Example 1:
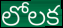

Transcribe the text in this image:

లోలక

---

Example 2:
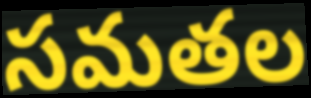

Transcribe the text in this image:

సమతల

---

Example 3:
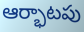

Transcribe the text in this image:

ఆర్భాటపు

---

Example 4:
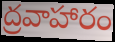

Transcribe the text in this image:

ద్రవాహారం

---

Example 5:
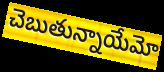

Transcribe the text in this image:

చెబుతున్నాయేమో